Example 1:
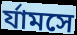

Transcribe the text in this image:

র্যামসে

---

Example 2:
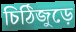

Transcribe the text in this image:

চিঠিজুড়ে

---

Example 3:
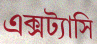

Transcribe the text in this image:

এক্সট্যাসি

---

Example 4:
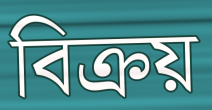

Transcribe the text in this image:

বিক্রয়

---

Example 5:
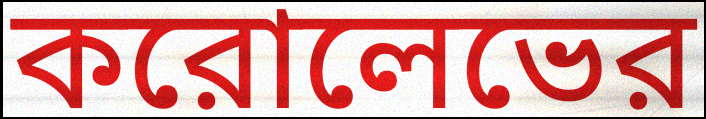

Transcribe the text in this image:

করোলেভের